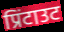
प्रिंटाउट